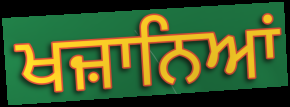
ਖਜ਼ਾਨਿਆਂ